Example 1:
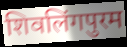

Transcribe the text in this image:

शिवलिंगपुरम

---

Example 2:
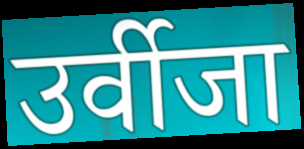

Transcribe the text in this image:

उर्वीजा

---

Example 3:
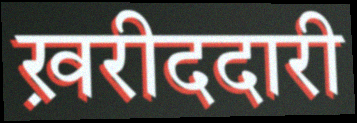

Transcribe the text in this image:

ख़रीददारी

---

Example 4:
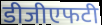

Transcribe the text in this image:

डीजीएफटी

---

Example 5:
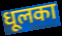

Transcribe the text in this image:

धूलका